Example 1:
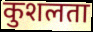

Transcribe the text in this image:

कुशलता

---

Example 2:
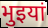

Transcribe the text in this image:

भुइयां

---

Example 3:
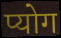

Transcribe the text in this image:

प्योग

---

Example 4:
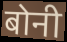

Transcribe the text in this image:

बोनी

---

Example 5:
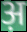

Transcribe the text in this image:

अ़